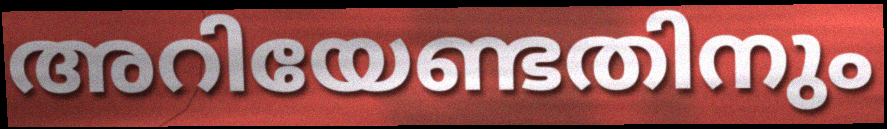
അറിയേണ്ടതിനും